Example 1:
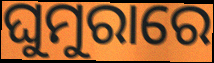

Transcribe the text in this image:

ଘୁମୁରାରେ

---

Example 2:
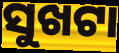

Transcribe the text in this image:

ସୁଖଟା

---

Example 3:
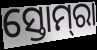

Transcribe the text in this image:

ସ୍ତୋମ୍‌ରା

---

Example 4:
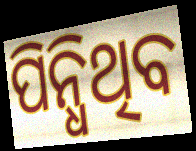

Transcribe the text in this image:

ପିନ୍ଧିଥିବ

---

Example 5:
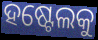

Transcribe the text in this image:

ହଷ୍ଟେଲକୁ